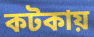
কটকায়